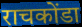
राचकोंडा